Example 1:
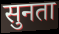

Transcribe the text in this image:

सुनता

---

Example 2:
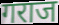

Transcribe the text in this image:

गराज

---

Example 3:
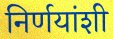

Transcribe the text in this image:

निर्णयांशी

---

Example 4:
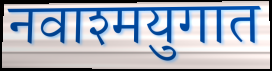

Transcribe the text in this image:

नवाश्मयुगात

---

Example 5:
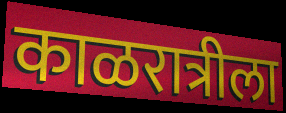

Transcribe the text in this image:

काळरात्रीला